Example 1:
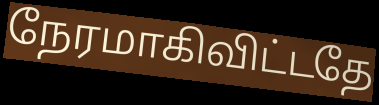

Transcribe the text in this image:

நேரமாகிவிட்டதே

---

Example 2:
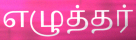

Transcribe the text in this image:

எழுத்தர்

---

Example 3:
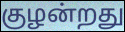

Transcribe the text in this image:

குழன்றது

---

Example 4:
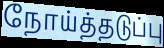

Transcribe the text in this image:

நோய்த்தடுப்பு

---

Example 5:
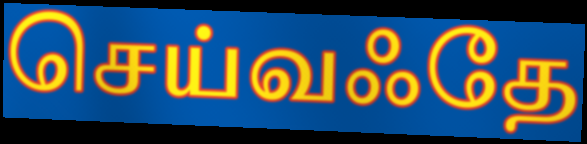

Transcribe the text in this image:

செய்வஃதே